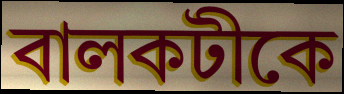
বালকটীকে